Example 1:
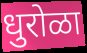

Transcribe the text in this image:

धुरोळा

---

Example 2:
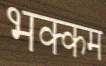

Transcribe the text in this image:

भक्‍कम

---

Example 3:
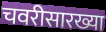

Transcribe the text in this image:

चवरीसारख्या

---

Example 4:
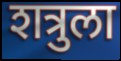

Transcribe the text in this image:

शत्रुला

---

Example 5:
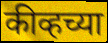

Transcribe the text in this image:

कीव्हच्या